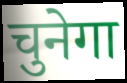
चुनेगा